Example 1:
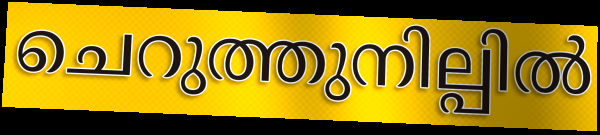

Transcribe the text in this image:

ചെറുത്തുനില്പിൽ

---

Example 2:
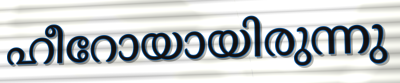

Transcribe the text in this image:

ഹീറോയായിരുന്നു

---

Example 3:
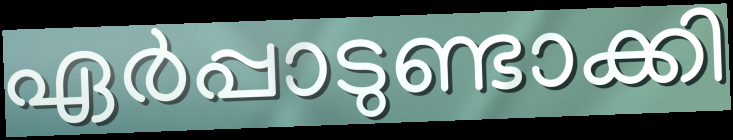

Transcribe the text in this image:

ഏർപ്പാടുണ്ടാക്കി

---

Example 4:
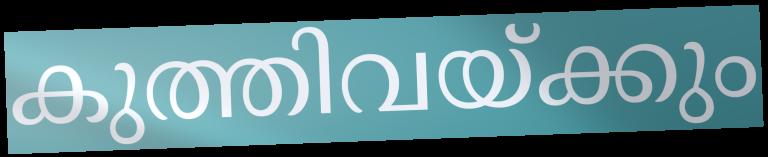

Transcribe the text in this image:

കുത്തിവയ്ക്കും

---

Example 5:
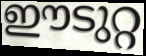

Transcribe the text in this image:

ഈടുറ്റ